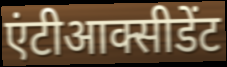
एंटीआक्सीडेंट